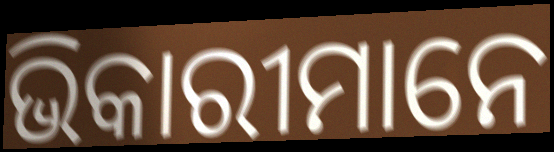
ଭିକାରୀମାନେ